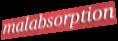
malabsorption